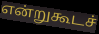
என்றுகூடச்